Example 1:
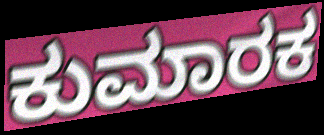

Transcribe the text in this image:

ಕುಮಾರಕ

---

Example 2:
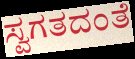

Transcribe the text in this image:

ಸ್ವಗತದಂತೆ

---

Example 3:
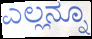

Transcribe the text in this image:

ಎಲ್ಲನ್ನೂ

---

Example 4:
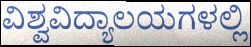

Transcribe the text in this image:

ವಿಶ್ವವಿದ್ಯಾಲಯಗಳಲ್ಲಿ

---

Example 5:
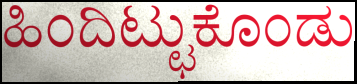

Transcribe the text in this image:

ಹಿಂದಿಟ್ಟುಕೊಂಡು